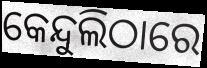
କେନ୍ଦୁଲିଠାରେ